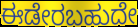
ಈಡೇರಬಹುದೇ